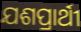
ଯଶପ୍ରାର୍ଥୀ